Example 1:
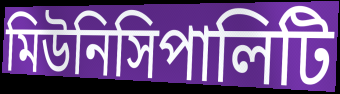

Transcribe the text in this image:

মিউনিসিপালিটি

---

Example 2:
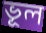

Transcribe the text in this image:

ভূল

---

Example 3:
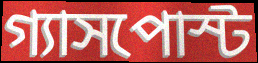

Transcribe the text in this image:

গ্যাসপোস্ট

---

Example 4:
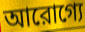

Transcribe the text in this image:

আরোগ্যে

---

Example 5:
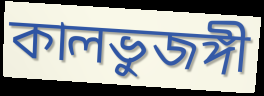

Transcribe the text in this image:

কালভুজঙ্গী